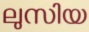
ലുസിയ